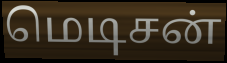
மெடிசன்